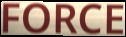
FORCE